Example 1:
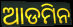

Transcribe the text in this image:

ଆଡମିନ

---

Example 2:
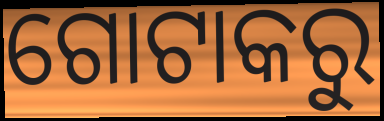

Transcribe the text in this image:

ଗୋଟାକରୁ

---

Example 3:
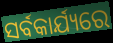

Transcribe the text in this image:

ସର୍ବକାର୍ଯ୍ୟରେ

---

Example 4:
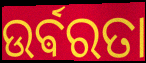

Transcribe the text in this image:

ଉର୍ଵରତା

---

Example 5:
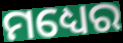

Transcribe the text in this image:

ମଧ୍ୟେର